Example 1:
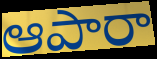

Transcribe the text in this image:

ఆపారా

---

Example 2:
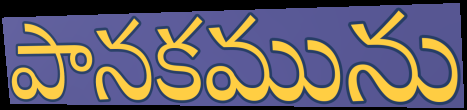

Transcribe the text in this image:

పానకమును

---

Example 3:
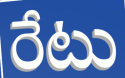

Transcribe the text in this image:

రేటు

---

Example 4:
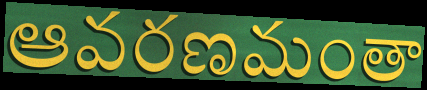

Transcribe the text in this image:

ఆవరణమంతా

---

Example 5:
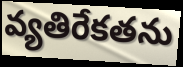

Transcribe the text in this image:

వ్యతిరేకతను